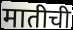
मातीची